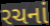
રચનાં